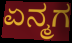
ಏನ್ಮಗ